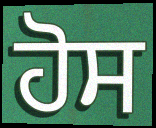
ਹੋਸ